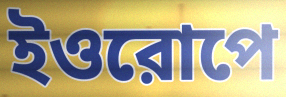
ইওরোপে